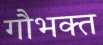
गौभक्त